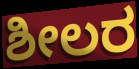
ಶೀಲರ